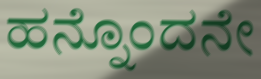
ಹನ್ನೊಂದನೇ